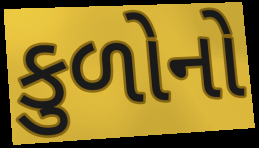
કુળોનો